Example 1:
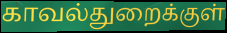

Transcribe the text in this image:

காவல்துறைக்குள்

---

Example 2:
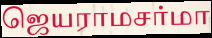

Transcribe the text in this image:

ஜெயராமசர்மா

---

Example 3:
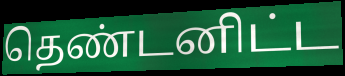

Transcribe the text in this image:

தெண்டனிட்ட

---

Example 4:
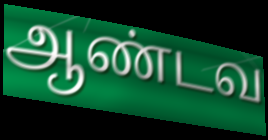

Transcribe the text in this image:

ஆண்டவ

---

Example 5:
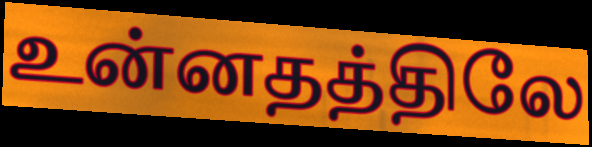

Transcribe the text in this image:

உன்னதத்திலே